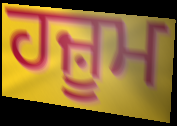
ਹਜ਼ੂਮ